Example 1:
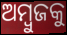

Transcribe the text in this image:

ଅମ୍ବୁଜକୁ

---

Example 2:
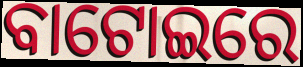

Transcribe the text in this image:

ବାଟୋଇରେ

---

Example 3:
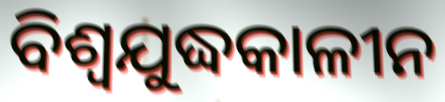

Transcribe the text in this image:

ବିଶ୍ୱଯୁଦ୍ଧକାଳୀନ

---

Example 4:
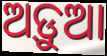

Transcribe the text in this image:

ଅଡ଼ୁଆ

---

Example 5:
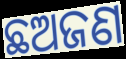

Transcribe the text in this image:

ଛଅଜଣ